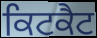
ਕਿਟਕੈਟ